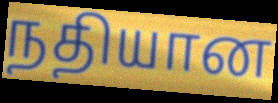
நதியான